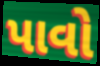
પાવો